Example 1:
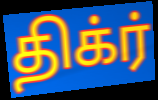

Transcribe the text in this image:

திக்ர்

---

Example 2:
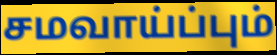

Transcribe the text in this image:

சமவாய்ப்பும்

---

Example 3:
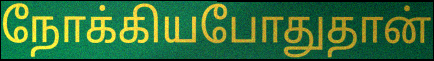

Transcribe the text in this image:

நோக்கியபோதுதான்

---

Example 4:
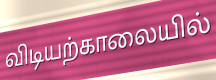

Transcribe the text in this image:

விடியற்காலையில்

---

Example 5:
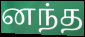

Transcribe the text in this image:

னந்த